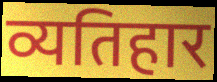
व्यतिहार